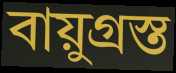
বায়ুগ্রস্ত